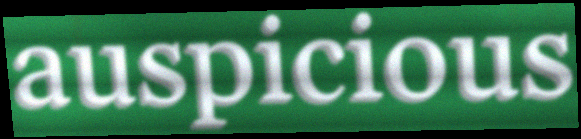
auspicious